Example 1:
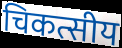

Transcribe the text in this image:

चिकत्सीय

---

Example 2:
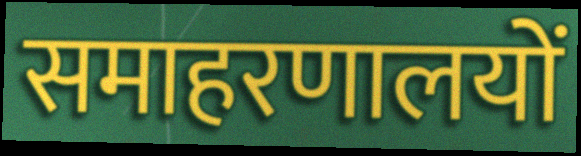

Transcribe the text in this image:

समाहरणालयों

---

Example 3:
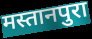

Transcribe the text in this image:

मस्तानपुरा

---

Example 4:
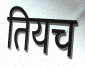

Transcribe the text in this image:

तियच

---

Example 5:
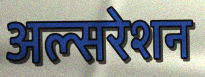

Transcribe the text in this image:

अल्सरेशन